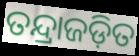
ତନ୍ଦ୍ରାଜଡ଼ିତ